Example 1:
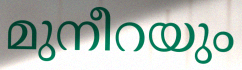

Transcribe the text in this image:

മുനീറയും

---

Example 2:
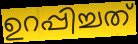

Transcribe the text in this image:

ഉറപ്പിച്ചത്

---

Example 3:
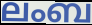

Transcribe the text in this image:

ലംബ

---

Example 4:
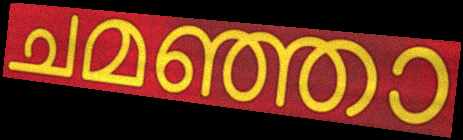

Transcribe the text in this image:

ചമഞ്ഞാ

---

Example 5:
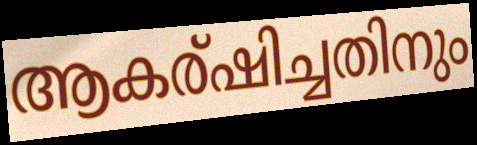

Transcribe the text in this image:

ആകര്ഷിച്ചതിനും